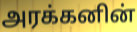
அரக்கனின்